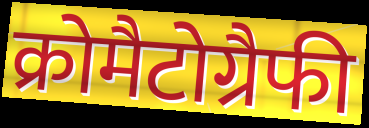
क्रोमैटोग्रैफी